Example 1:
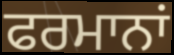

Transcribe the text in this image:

ਫਰਮਾਨਾਂ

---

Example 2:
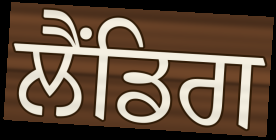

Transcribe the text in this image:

ਲੈਂਡਿਗ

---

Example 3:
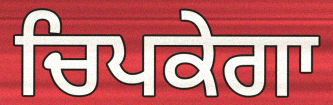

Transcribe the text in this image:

ਚਿਪਕੇਗਾ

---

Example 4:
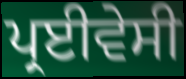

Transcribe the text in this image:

ਪ੍ਰਈਵੇਸੀ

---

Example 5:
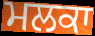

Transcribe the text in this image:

ਮਲਕਾ